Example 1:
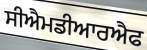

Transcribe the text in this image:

ਸੀਐਮਡੀਆਰਐਫ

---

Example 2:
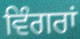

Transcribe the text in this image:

ਵਿੰਗਰਾਂ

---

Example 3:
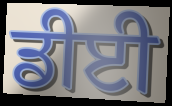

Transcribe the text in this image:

ਡੀਈ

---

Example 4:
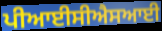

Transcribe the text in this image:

ਪੀਆਈਸੀਐਸਆਈ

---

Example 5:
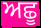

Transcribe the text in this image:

ਅਛੂ